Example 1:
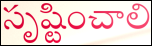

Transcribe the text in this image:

సృష్టించాలి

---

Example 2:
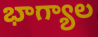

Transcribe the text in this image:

భాగ్యాల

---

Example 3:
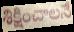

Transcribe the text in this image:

శిక్షించాలనే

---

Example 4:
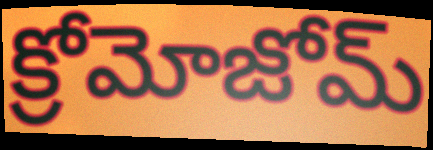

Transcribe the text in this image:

క్రోమోజోమ్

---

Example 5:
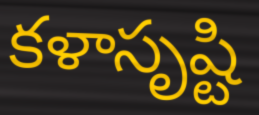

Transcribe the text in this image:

కళాసృష్టి